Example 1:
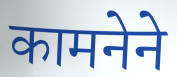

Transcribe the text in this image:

कामनेने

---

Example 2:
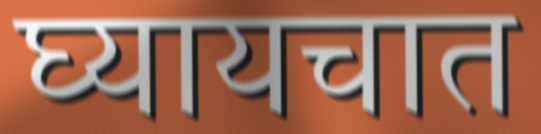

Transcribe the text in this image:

घ्यायचात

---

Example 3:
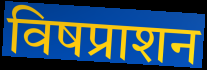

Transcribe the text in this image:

विषप्राशन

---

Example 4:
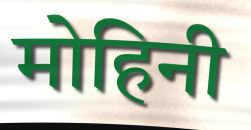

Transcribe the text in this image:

मोहिनी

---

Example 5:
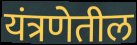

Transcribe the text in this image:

यंत्रणेतील